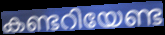
കണ്ടറിയേണ്ട